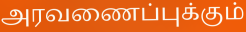
அரவணைப்புக்கும்